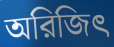
অরিজিৎ